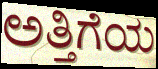
ಅತ್ತಿಗೆಯ